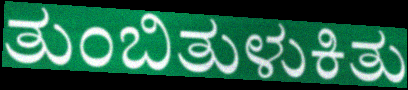
ತುಂಬಿತುಳುಕಿತು